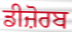
ਡੀਜ਼ੋਰਬ